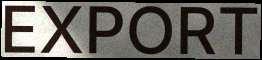
EXPORT